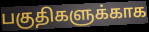
பகுதிகளுக்காக